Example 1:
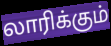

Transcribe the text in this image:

லாரிக்கும்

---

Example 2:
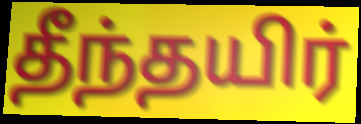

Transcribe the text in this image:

தீந்தயிர்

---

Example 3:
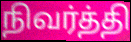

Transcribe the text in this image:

நிவர்த்தி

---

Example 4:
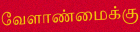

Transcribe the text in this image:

வேளாண்மைக்கு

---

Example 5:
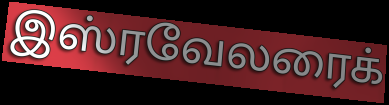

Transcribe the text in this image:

இஸ்ரவேலரைக்